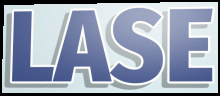
LASE